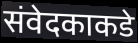
संवेदकाकडे